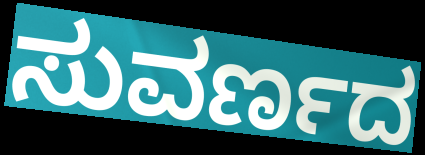
ಸುವರ್ಣದ